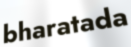
bharatada